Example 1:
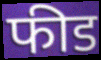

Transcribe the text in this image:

फीड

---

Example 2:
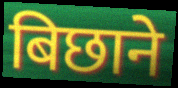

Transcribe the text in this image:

बिछाने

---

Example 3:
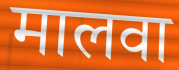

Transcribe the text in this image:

मालवा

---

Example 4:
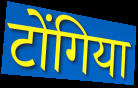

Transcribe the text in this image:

टोंगिया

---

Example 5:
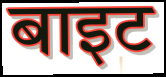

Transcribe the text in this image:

बाइट